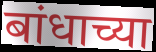
बांधाच्या